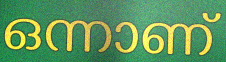
ഒന്നാണ്